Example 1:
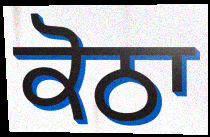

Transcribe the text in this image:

ਕੋਠਾ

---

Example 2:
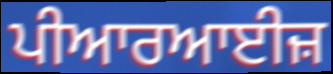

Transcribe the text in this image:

ਪੀਆਰਆਈਜ਼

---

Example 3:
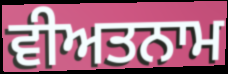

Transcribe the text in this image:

ਵੀਅਤਨਾਮ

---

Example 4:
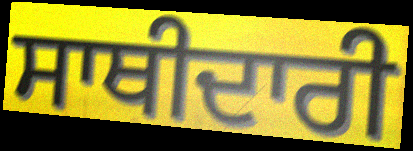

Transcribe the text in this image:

ਸਾਥੀਦਾਰੀ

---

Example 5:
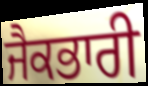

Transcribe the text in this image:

ਜੈਕਭਾਰੀ